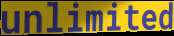
unlimited